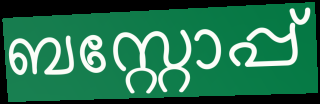
ബസ്റ്റോപ്പ്